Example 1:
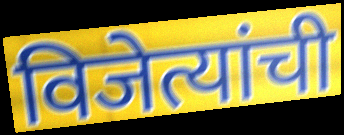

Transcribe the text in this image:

विजेत्यांची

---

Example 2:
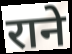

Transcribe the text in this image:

राने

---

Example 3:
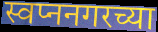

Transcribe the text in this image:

स्वप्ननगरच्या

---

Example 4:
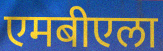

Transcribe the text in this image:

एमबीएला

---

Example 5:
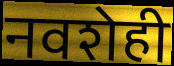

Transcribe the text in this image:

नवशेही